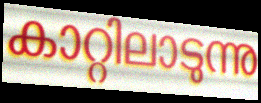
കാറ്റിലാടുന്നു